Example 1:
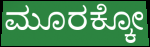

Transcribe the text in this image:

ಮೂರಕ್ಕೋ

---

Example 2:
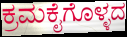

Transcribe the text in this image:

ಕ್ರಮಕೈಗೊಳ್ಳದ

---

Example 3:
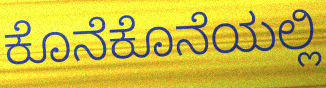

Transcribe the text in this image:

ಕೊನೆಕೊನೆಯಲ್ಲಿ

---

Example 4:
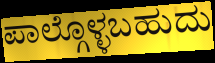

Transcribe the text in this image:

ಪಾಲ್ಗೊಳ್ಳಬಹುದು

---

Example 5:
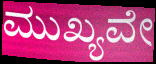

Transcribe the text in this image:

ಮುಖ್ಯವೇ